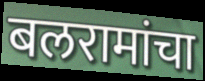
बलरामांचा